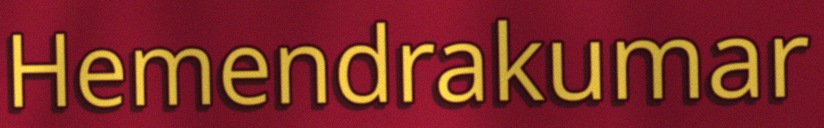
Hemendrakumar